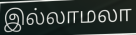
இல்லாமலா